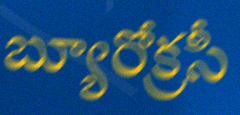
బ్యూరోక్రసీ